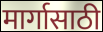
मार्गासाठी